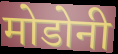
मोडोनी